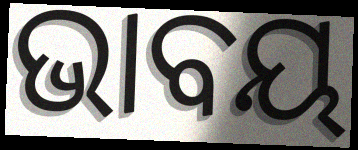
ଭାବୟ